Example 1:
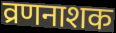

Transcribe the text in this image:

व्रणनाशक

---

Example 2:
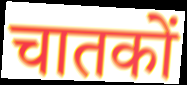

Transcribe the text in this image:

चातकों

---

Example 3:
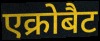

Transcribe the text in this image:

एक्रोबैट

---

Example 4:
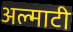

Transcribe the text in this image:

अल्माटी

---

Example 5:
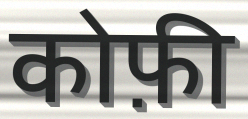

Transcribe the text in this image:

कोफ़ी